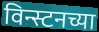
विन्स्टनच्या